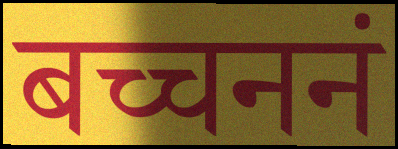
बच्चननं